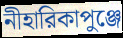
নীহারিকাপুঞ্জে